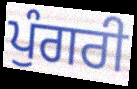
ਪੁੰਗਰੀ